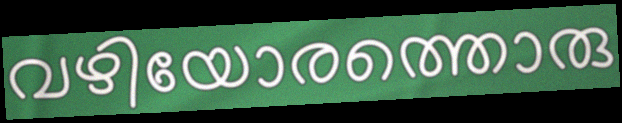
വഴിയോരത്തൊരു